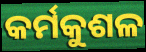
କର୍ମକୁଶଳ